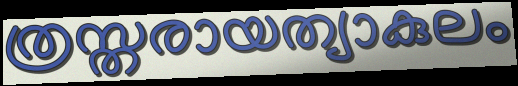
ത്രസ്തരായത്യാകുലം